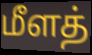
மீளத்